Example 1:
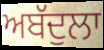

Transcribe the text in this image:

ਅਬੱਦੁਲਾ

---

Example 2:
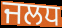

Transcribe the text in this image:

ਜਲਧ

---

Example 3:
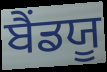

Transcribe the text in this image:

ਬੈਂਡਯੂ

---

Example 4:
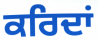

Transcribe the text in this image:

ਕਰਿਦਾਂ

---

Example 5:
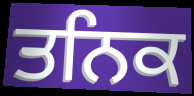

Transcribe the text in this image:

ਤਨਿਕ